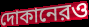
দোকানেরও